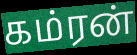
கம்ரன்